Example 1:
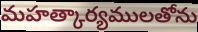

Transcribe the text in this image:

మహత్కార్యములతోను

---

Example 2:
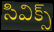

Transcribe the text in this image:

సివిక్స్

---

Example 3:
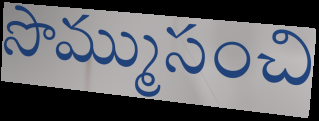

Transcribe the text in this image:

సొమ్ముసంచి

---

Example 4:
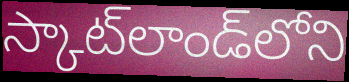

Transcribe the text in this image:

స్కాట్‌లాండ్‌లోని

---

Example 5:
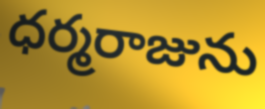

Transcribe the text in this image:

ధర్మరాజును